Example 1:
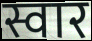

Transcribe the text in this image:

स्‍वार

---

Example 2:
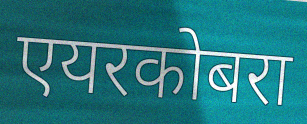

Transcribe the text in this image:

एयरकोबरा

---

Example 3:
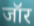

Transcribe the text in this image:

जॉर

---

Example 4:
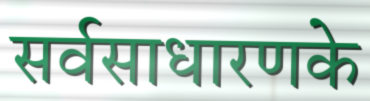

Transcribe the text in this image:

सर्वसाधारणके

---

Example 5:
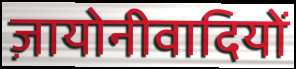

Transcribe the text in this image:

ज़ायोनीवादियों